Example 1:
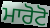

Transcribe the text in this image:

ਮਾਰੋਟੋ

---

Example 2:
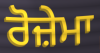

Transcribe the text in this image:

ਰੋਜ਼ੇਮਾ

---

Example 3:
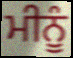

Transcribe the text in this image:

ਮੀਨੂੰ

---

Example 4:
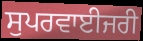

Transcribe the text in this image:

ਸੁਪਰਵਾਈਜਰੀ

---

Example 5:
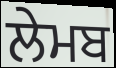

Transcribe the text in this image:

ਲੇਮਬ